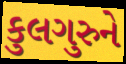
કુલગુરુને